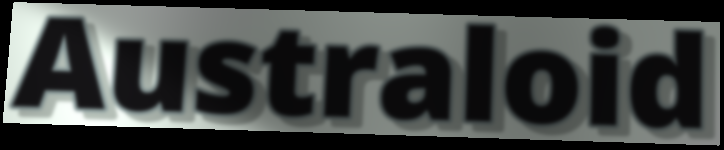
Australoid